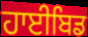
ਹਾਈਬਿਡ